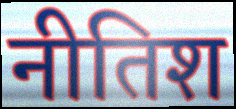
नीतिश